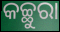
କଚ୍ଛୁରା